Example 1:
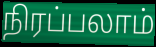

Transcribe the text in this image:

நிரப்பலாம்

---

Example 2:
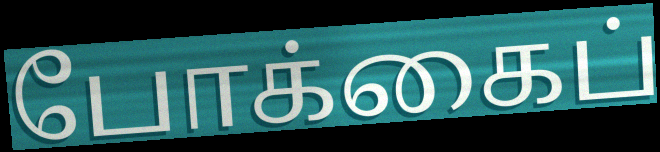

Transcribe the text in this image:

போக்கைப்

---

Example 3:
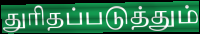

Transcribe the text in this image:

துரிதப்படுத்தும்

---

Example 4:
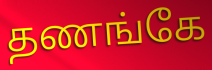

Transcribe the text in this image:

தணங்கே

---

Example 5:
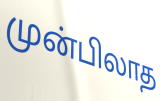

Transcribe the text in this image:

முன்பிலாத